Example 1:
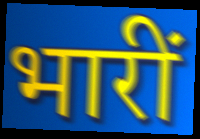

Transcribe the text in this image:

भारीं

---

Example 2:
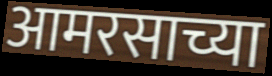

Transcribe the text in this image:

आमरसाच्या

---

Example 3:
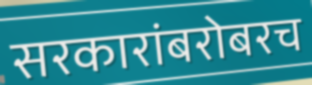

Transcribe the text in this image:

सरकारांबरोबरच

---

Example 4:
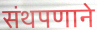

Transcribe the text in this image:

संथपणाने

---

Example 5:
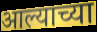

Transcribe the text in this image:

आल्याच्या